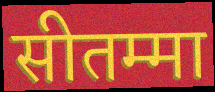
सीतम्मा